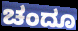
ಚಂದೂ